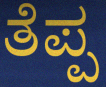
ತೆಪ್ಪ